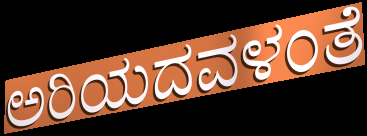
ಅರಿಯದವಳಂತೆ